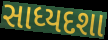
સાધ્યદશા